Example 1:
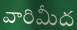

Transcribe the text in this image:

వారిమీద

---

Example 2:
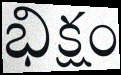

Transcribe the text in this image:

భిక్షం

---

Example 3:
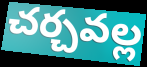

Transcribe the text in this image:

చర్చవల్ల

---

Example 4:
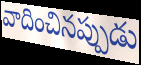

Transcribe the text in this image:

వాదించినప్పుడు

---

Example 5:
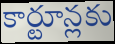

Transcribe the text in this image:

కార్టూన్లకు